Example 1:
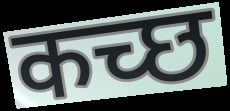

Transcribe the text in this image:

कच्छ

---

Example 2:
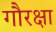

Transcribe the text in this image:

गौरक्षा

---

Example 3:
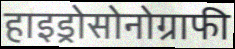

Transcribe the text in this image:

हाइड्रोसोनोग्राफी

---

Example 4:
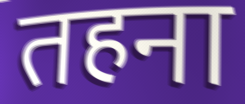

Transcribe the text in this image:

तहना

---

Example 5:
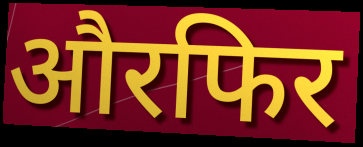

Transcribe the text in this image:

औरफिर